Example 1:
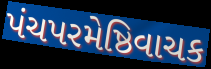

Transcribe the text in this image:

પંચપરમેષ્ઠિવાચક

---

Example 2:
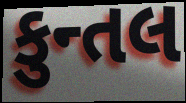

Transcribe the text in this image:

કુન્તલ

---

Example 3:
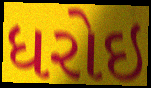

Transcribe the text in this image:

ધરોઇ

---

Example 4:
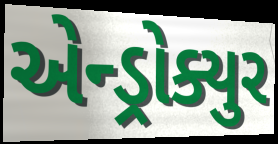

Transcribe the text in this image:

એન્ડ્રોક્યુર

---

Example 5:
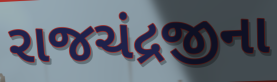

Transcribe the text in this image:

રાજચંદ્રજીના